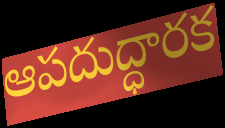
ఆపదుద్ధారక